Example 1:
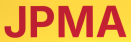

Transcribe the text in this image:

JPMA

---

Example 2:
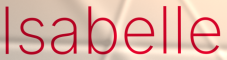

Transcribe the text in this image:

Isabelle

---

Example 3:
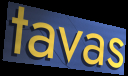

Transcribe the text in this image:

tavas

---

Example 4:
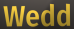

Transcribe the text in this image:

Wedd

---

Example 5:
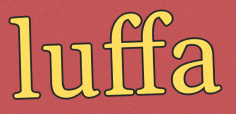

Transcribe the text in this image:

luffa